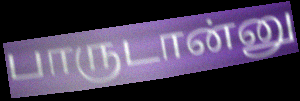
பாருடான்னு